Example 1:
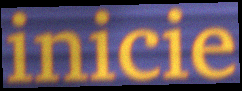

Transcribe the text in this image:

inicie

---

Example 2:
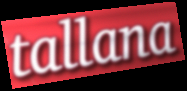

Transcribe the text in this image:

tallana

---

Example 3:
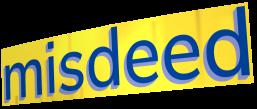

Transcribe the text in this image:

misdeed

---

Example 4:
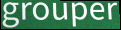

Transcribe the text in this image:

grouper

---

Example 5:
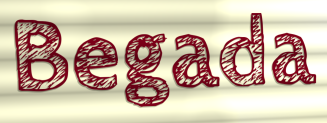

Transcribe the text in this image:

Begada